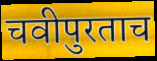
चवीपुरताच